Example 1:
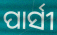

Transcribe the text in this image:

ପାର୍ସୀ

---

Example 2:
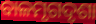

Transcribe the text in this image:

ବାଳମୃଗଦୃଶା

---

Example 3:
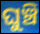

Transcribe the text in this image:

ଘୁଞ୍ଚି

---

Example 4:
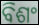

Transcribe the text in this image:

ବିଶଂ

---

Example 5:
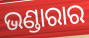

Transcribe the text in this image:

ଭଣ୍ଡାରାର